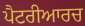
ਪੈਟਰੀਆਰਚ